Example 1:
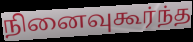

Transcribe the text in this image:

நினைவுகூர்ந்த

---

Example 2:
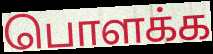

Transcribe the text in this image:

பொளக்க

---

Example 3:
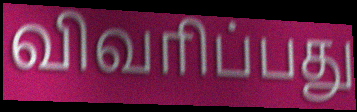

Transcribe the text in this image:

விவரிப்பது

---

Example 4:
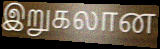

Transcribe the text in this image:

இறுகலான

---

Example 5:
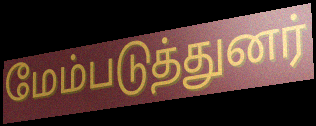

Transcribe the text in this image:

மேம்படுத்துனர்